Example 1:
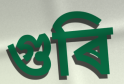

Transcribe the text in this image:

গুৰি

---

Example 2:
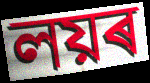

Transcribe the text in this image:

লয়ৰ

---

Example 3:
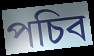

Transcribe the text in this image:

পচিব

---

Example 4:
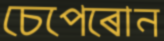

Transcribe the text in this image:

চেপেৰোন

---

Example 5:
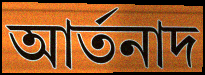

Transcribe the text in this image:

আৰ্তনাদ